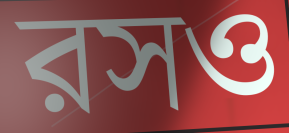
রসও